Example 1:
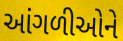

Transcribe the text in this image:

આંગળીઓને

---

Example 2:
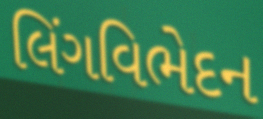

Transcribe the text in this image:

લિંગવિભેદન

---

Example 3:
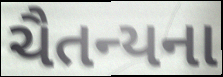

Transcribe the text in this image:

ચૈતન્યના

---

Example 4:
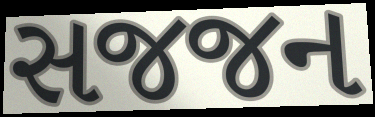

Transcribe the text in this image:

સજજન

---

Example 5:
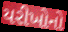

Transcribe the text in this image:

યરીખોનો